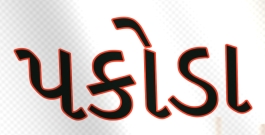
પકોડા